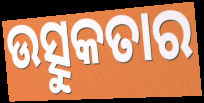
ଉତ୍ସୁକତାର